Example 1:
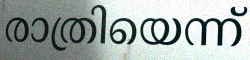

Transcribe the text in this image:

രാത്രിയെന്ന്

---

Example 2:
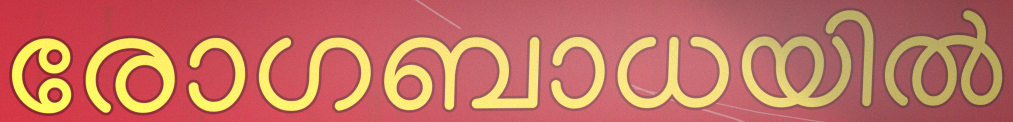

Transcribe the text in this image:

രോഗബാധയിൽ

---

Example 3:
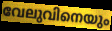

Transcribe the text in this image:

വേലുവിനെയും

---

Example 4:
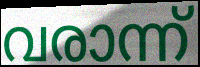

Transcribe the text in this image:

വരാന്ന്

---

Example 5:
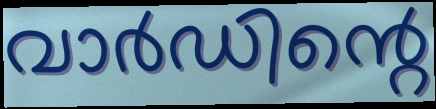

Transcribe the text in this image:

വാർഡിന്റെ